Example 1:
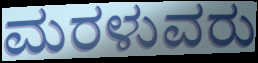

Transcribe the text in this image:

ಮರಳುವರು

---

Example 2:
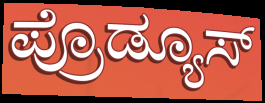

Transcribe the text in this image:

ಪ್ರೊಡ್ಯೂಸ್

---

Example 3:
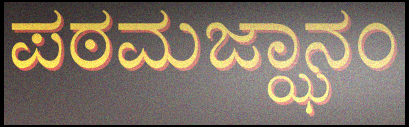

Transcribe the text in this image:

ಪಠಮಜ್ಝಾನಂ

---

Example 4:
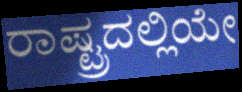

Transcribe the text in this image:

ರಾಷ್ಟ್ರದಲ್ಲಿಯೇ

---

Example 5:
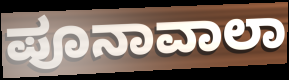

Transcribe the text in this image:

ಪೂನಾವಾಲಾ